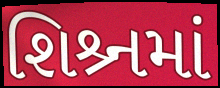
શિશ્ર્નમાં